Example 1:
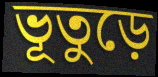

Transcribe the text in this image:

ভূতুড়ে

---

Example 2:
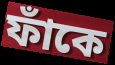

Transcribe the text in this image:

ফাঁকে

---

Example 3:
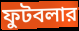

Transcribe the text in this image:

ফুটবলার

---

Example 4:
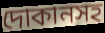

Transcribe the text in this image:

দোকানসহ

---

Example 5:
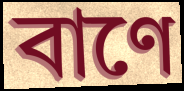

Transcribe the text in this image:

বাণে